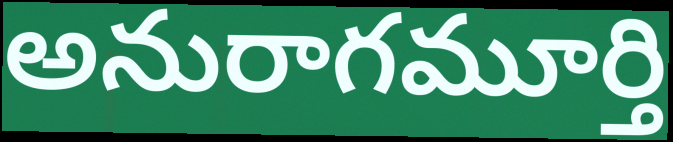
అనురాగమూర్తి